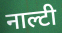
नाल्टी